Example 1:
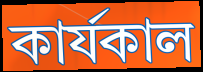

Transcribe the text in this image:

কার্যকাল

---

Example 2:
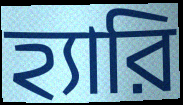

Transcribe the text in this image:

হ্যারি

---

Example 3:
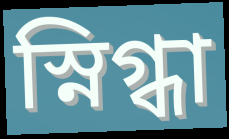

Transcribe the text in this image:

স্নিগ্ধা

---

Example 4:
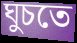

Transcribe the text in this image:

ঘুচতে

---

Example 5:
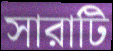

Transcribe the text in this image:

সারাটি